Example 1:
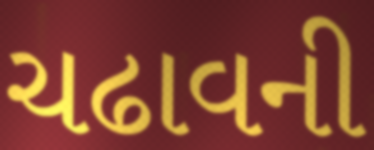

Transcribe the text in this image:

ચઢાવની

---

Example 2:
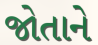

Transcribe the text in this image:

જોતાને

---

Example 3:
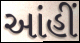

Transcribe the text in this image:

આંહીં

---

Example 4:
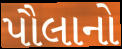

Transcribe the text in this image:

પૌલાનો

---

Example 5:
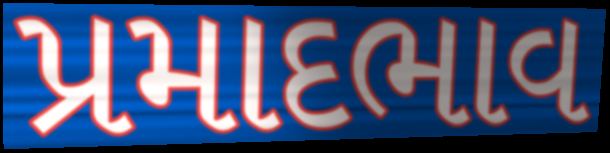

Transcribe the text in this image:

પ્રમાદભાવ